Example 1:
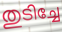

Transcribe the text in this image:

തുടിച്ചേ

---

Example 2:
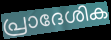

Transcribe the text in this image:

പ്രാദേശിക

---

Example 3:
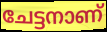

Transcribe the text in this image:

ചേട്ടനാണ്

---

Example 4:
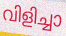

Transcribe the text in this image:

വിളിച്ചാ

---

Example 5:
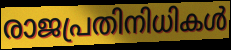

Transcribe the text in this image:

രാജപ്രതിനിധികൾ